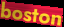
boston